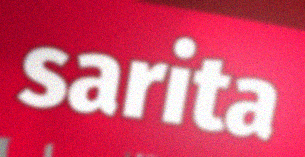
sarita